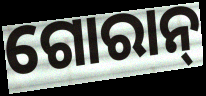
ଗୋରାନ୍